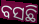
ବସଛି